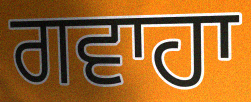
ਗਵਾਹਾ